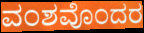
ವಂಶವೊಂದರ